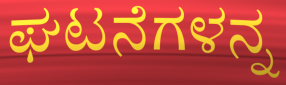
ಘಟನೆಗಳನ್ನ